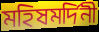
মহিষমর্দিনী